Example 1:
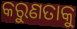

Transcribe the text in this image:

କରୁଣତାକୁ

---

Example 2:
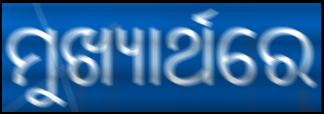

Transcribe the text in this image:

ମୁଖ୍ୟାର୍ଥରେ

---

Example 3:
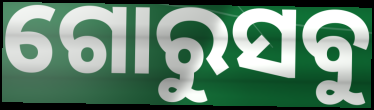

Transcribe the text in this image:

ଗୋରୁସବୁ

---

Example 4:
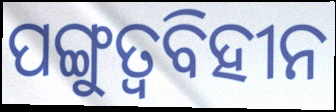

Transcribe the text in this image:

ପଙ୍ଗୁତ୍ୱବିହୀନ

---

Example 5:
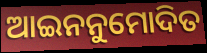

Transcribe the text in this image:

ଆଇନନୁମୋଦିତ